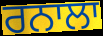
ਰਨਾਲਾ